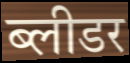
ब्लीडर